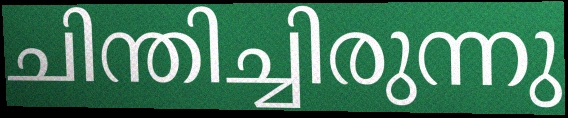
ചിന്തിച്ചിരുന്നു